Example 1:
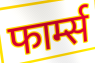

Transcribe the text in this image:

फार्म्स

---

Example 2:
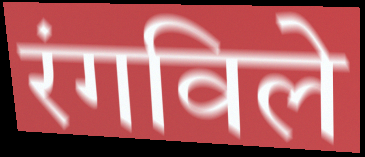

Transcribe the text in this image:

रंगविले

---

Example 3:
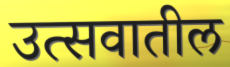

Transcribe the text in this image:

उत्सवातील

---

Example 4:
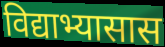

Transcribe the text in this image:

विद्याभ्यासास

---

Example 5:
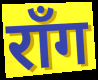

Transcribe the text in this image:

रॉंग